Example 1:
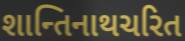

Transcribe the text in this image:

શાન્તિનાથચરિત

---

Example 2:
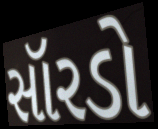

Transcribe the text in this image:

સૉરડો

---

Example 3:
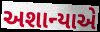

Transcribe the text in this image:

અશાન્યાએ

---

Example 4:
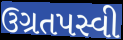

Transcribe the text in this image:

ઉગ્રતપસ્વી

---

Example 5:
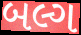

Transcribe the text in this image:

બલ્ગ